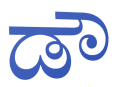
ಡೌ